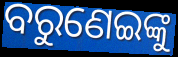
ବରୁଣେଇଙ୍କୁ